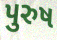
પુરુષ